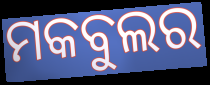
ମକବୁଲର